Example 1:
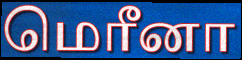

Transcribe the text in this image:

மெரீனா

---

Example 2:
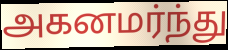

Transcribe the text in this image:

அகனமர்ந்து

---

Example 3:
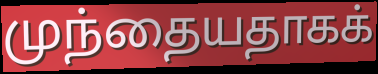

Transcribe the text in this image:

முந்தையதாகக்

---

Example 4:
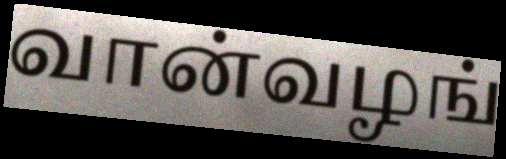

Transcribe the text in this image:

வான்வழங்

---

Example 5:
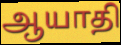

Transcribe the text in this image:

ஆயாதி